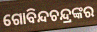
ଗୋବିନ୍ଦଚନ୍ଦ୍ରଙ୍କର